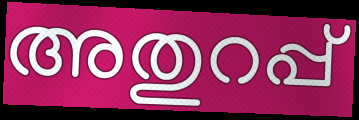
അതുറപ്പ്